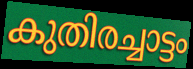
കുതിരച്ചാട്ടം